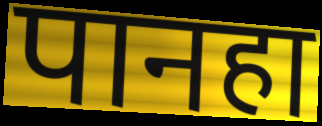
पानहा